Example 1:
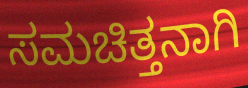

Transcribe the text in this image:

ಸಮಚಿತ್ತನಾಗಿ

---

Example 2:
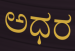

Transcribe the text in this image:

ಅಧರ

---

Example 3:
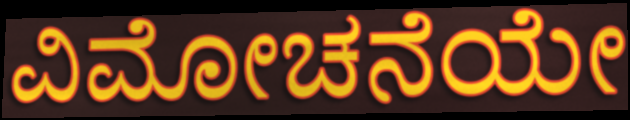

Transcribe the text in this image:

ವಿಮೋಚನೆಯೇ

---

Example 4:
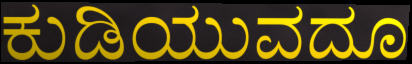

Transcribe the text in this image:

ಕುಡಿಯುವದೂ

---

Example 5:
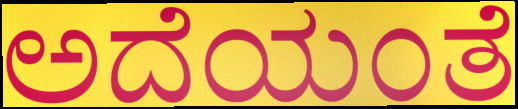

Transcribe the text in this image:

ಅದೆಯಂತೆ